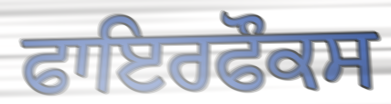
ਫਾਇਰਫੌਕਸ